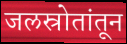
जलस्रोतांतून